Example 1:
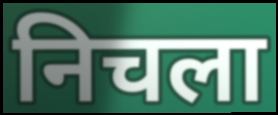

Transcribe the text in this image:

निचला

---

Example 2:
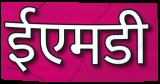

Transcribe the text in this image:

ईएमडी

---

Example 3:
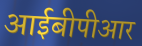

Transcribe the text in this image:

आईबीपीआर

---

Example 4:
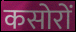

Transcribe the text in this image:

कसोरों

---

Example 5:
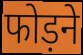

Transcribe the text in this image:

फोड़ने